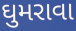
ઘુમરાવા